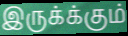
இருக்க்கும்